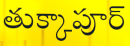
తుక్కాపూర్